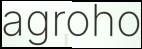
agroho